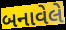
બનાવેલે